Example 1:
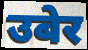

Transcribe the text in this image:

उबेर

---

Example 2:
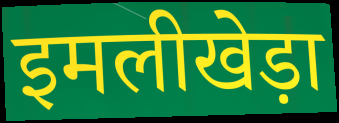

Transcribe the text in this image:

इमलीखेड़ा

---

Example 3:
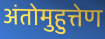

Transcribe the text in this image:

अंतोमुहुत्तेण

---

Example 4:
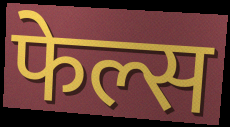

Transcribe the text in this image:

फेल्स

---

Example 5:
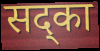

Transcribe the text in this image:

सद्का